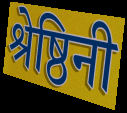
श्रेष्ठिनी